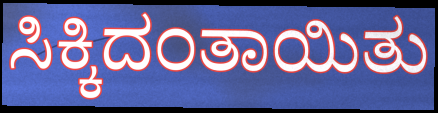
ಸಿಕ್ಕಿದಂತಾಯಿತು